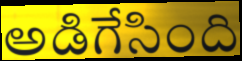
అడిగేసింది